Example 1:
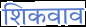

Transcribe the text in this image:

शिकवाव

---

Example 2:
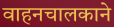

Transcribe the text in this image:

वाहनचालकाने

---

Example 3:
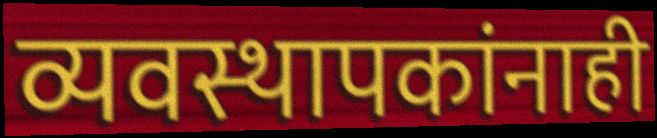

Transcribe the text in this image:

व्यवस्थापकांनाही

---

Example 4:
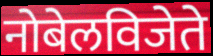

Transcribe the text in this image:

नोबेलविजेते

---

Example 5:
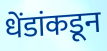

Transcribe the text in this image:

धेंडांकडून